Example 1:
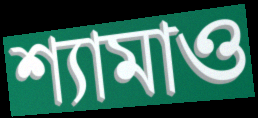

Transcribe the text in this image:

শ্যামাও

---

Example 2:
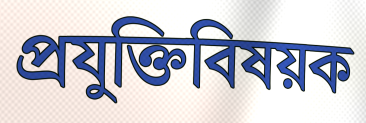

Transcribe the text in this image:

প্রযুক্তিবিষয়ক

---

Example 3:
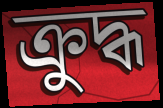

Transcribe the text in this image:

ক্রুদ্ধ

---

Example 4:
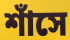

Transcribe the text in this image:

শাঁসে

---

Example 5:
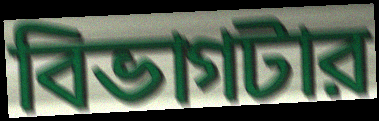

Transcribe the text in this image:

বিভাগটার